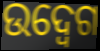
ଉଦ୍ବେଗ